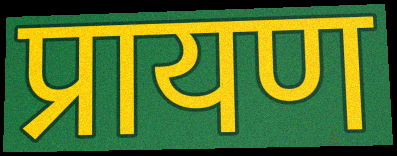
प्रायण